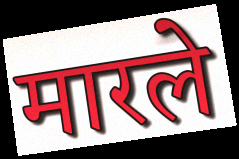
मारले